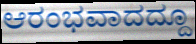
ಆರಂಭವಾದದ್ದೂ